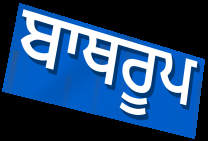
ਬਾਥਰੂਪ